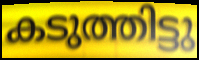
കടുത്തിട്ടു